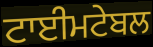
ਟਾਈਮਟੇਬਲ